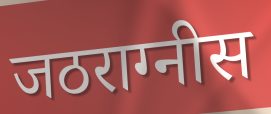
जठराग्नीस